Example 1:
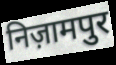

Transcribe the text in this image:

निज़ामपुर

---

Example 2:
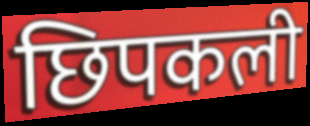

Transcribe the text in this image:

छिपकली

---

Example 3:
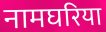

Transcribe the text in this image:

नामघरिया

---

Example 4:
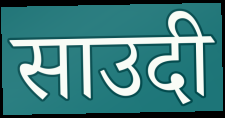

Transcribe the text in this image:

साउदी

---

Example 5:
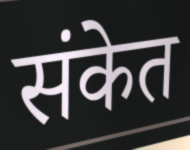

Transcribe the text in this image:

संकेत